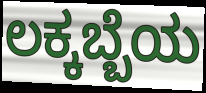
ಲಕ್ಕಬ್ಬೆಯ